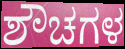
ಶೌಚಗಳ